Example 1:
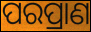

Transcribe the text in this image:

ପରପ୍ରାଣ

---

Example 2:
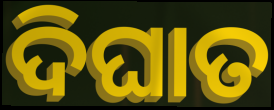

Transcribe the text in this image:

ଦିଘାତ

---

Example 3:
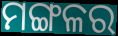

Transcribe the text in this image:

ମଙ୍ଗଳର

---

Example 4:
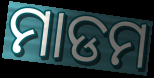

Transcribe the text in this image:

ମାଡମ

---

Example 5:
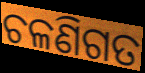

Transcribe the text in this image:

ଚଳଣିଗତ